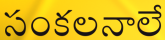
సంకలనాలే